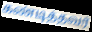
கண்டித்தவர்